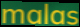
malas